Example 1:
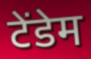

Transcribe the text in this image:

टेंडेम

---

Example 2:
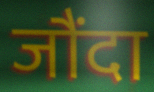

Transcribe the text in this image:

जौंदा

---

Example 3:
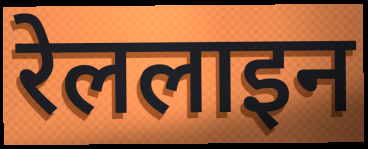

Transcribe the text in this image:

रेललाइन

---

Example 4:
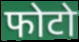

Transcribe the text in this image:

फोटो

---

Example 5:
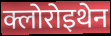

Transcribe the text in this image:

क्लोरोइथेन